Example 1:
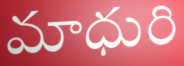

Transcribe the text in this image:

మాధురి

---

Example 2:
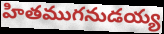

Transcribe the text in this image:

హితముగనుడయ్య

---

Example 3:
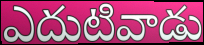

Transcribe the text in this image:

ఎదుటివాడు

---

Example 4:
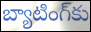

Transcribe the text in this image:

బ్యాటింగ్‌కు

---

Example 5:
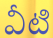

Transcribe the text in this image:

వీటి